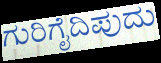
ಗುರಿಗೈದಿಪುದು